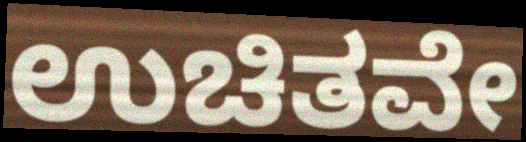
ಉಚಿತವೇ